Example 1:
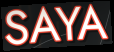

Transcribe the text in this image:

SAYA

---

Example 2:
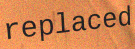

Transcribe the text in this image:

replaced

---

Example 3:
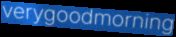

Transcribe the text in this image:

verygoodmorning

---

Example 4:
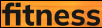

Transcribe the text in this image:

fitness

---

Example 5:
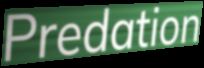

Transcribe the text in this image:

Predation